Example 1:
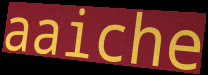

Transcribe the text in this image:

aaiche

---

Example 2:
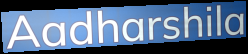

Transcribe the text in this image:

Aadharshila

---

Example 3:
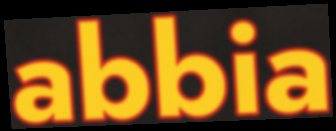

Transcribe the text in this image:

abbia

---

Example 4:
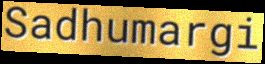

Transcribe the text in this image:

Sadhumargi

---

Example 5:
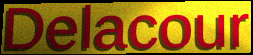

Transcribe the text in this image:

Delacour